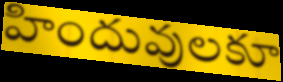
హిందువులకూ